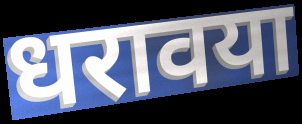
धरावया